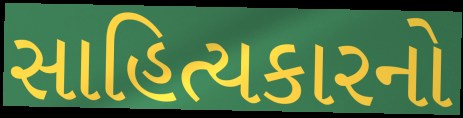
સાહિત્યકારનો